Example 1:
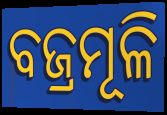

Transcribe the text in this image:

ବଜ୍ରମୂଳି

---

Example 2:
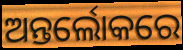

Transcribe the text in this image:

ଅନ୍ତର୍ଲୋକରେ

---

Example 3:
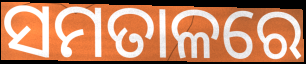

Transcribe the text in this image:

ସମତାଳରେ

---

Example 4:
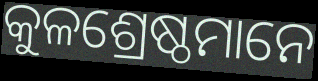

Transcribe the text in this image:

କୁଳଶ୍ରେଷ୍ଠମାନେ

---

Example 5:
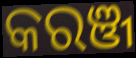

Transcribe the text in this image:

କରଞ୍ଜ